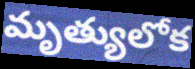
మృత్యులోక